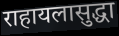
राहायलासुद्धा